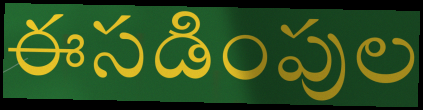
ఈసడింపుల